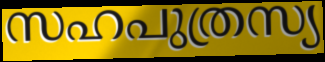
സഹപുത്രസ്യ